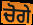
ਚੋਗੇ